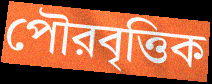
পৌরবৃত্তিক